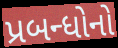
પ્રબન્ધોનો